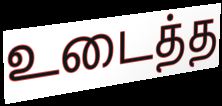
உடைத்த